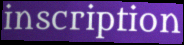
inscription